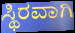
ಸ್ಥಿರವಾಗಿ